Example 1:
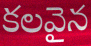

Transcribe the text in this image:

కలవైన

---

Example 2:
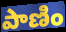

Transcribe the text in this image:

పాణిం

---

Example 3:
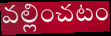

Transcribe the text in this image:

వల్లించటం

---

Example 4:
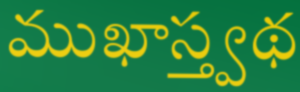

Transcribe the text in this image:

ముఖాస్త్వథ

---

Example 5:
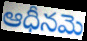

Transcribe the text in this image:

ఆధీనమె